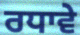
ਰਧਾਵੇ